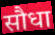
सौधा